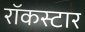
रॉकस्टार